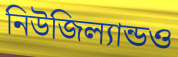
নিউজিল্যান্ডও